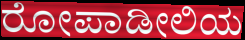
ರೋಪಾಡೀಲಿಯ